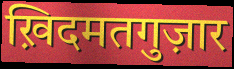
ख़िदमतगुज़ार